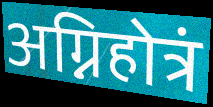
अग्निहोत्रं